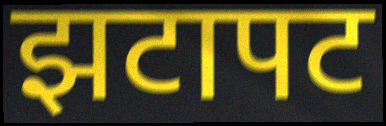
झटापट